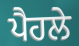
ਪੈਹਲੇ